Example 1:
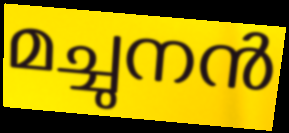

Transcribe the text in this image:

മച്ചുനൻ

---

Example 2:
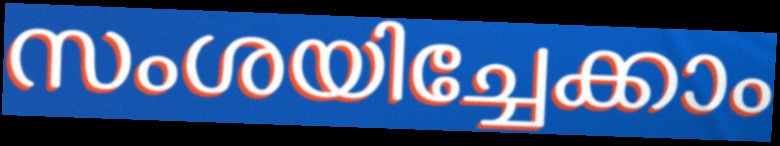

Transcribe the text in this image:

സംശയിച്ചേക്കാം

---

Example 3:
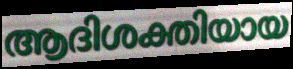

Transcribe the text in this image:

ആദിശക്തിയായ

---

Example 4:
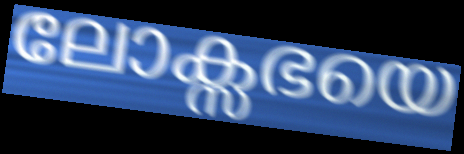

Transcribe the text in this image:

ലോക്സഭയെ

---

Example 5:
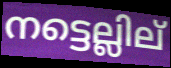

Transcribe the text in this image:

നട്ടെല്ലില്